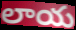
లాయ